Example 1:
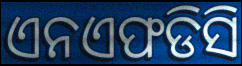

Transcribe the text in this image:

ଏନଏଫଡିସି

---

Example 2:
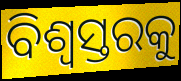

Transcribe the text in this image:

ବିଶ୍ୱସ୍ତରକୁ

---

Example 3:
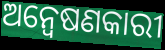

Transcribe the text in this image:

ଅନ୍ୱେଷଣକାରୀ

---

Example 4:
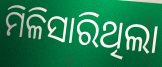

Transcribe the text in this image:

ମିଳିସାରିଥିଲା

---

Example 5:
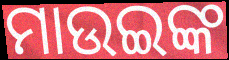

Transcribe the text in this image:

ମାଉଇଙ୍କ